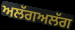
ਅਲੱਗਅਲੱਗ